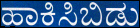
ಹಾಕಿಸಿಬಿಡು